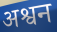
अश्वन